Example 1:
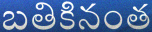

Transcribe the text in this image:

బతికినంత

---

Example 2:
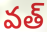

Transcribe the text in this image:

వత్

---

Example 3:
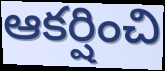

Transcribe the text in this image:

ఆకర్షించి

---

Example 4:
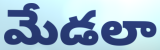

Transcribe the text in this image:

మేడలా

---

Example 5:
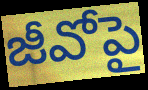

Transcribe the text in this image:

జీవోపై